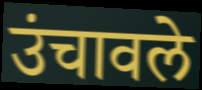
उंचावले